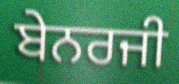
ਬੇਨਰਜੀ